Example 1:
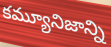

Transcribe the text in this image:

కమ్యూనిజాన్ని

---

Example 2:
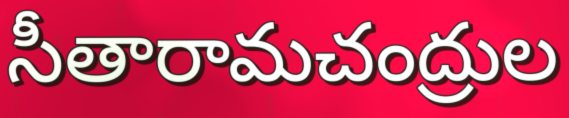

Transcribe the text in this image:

సీతారామచంద్రుల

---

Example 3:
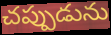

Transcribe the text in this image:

చప్పుడును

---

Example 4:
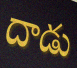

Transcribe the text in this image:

దాడు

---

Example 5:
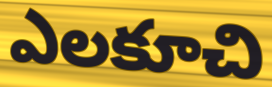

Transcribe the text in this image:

ఎలకూచి